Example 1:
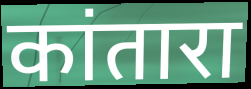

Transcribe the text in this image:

कांतारा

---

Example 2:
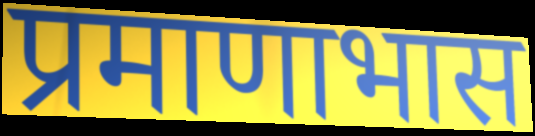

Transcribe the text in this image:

प्रमाणाभास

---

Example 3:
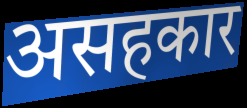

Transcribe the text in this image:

असहकार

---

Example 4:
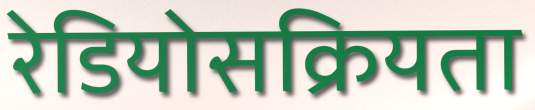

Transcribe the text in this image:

रेडियोसक्रियता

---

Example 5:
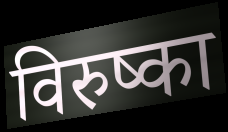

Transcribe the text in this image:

विरुष्का